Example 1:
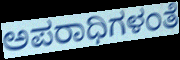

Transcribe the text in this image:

ಅಪರಾಧಿಗಳಂತೆ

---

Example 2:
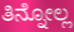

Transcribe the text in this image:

ತಿನ್ನೋಲ್ಲ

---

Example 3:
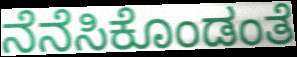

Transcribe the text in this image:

ನೆನೆಸಿಕೊಂಡಂತೆ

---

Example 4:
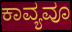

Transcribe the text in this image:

ಕಾವ್ಯವೂ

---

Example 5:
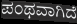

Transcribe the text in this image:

ಪಂಥವಾಗಿದೆ